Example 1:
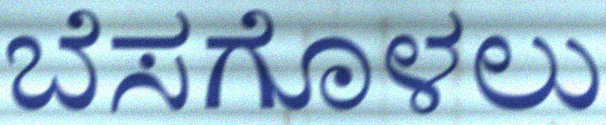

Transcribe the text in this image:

ಬೆಸಗೊಳಲು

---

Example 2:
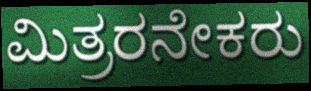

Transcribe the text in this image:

ಮಿತ್ರರನೇಕರು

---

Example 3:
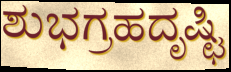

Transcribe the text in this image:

ಶುಭಗ್ರಹದೃಷ್ಟಿ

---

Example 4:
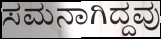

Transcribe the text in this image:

ಸಮನಾಗಿದ್ದವು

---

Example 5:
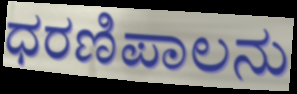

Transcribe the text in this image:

ಧರಣಿಪಾಲನು